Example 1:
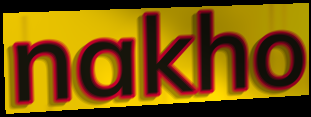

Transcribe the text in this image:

nakho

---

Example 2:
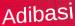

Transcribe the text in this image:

Adibasi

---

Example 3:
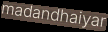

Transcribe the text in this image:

madandhaiyar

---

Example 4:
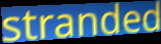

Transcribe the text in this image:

stranded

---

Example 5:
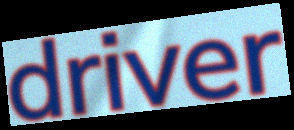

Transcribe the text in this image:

driver